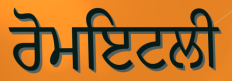
ਰੋਮਇਟਲੀ